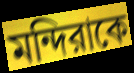
মন্দিরাকে